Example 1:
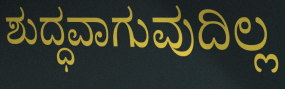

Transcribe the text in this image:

ಶುದ್ಧವಾಗುವುದಿಲ್ಲ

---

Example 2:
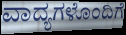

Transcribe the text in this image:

ವಾದ್ಯಗಳೊಂದಿಗೆ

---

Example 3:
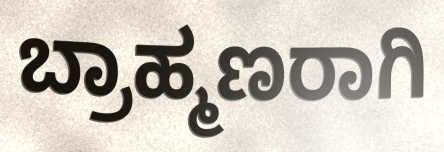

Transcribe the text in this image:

ಬ್ರಾಹ್ಮಣರಾಗಿ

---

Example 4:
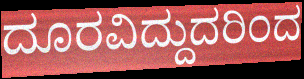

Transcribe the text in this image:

ದೂರವಿದ್ದುದರಿಂದ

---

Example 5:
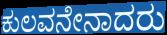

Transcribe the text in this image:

ಕುಲವನೇನಾದರು